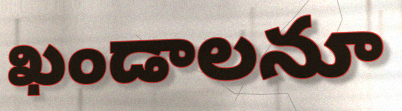
ఖండాలనూ